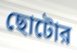
ছোটোর